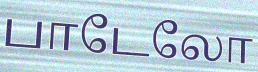
பாடேலோ